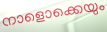
നാളൊക്കെയും